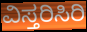
ವಿಸ್ತರಿಸಿರಿ